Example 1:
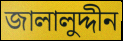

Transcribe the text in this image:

জালালুদ্দীন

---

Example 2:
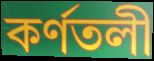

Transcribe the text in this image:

কর্ণতলী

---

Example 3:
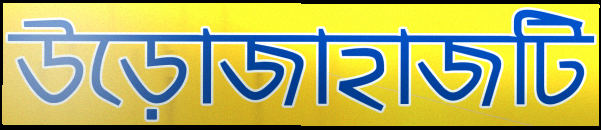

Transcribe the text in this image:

উড়োজাহাজটি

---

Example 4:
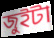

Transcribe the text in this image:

জুইটা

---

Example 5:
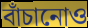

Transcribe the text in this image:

বাঁচানোও